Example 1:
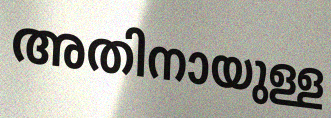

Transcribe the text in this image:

അതിനായുള്ള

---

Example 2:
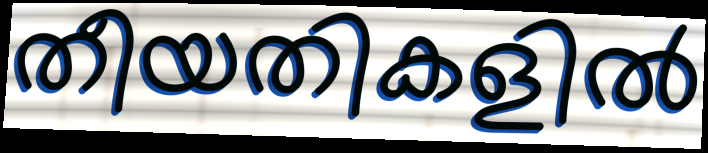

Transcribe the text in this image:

തീയതികളിൽ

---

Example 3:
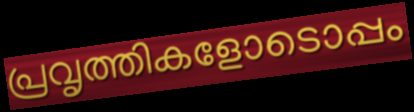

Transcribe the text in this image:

പ്രവൃത്തികളോടൊപ്പം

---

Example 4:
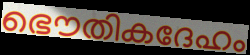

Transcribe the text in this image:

ഭൌതികദേഹം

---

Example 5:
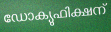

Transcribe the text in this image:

ഡോക്യുഫിക്ഷന്